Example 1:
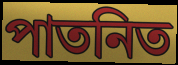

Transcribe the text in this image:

পাতনিত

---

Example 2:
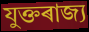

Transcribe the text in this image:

যুক্তৰাজ্য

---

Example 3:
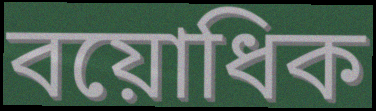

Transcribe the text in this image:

বয়োধিক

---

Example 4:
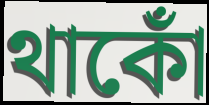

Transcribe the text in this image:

থাকোঁ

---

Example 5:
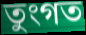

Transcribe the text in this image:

তুংগত